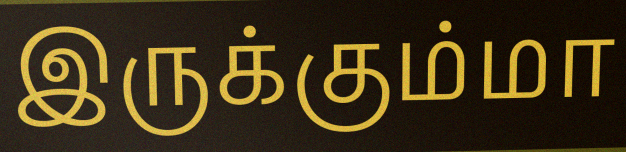
இருக்கும்மா